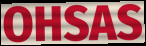
OHSAS